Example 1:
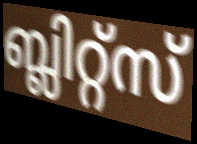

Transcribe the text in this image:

ബ്ലിറ്റ്സ്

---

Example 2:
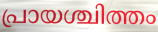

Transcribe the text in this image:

പ്രായശ്ചിത്തം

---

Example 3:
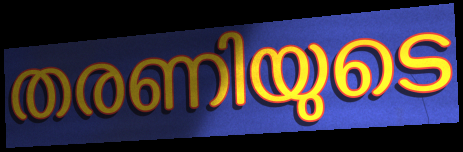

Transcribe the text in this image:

തരണിയുടെ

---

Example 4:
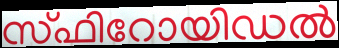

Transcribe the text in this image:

സ്ഫിറോയിഡൽ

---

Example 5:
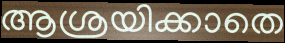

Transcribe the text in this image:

ആശ്രയിക്കാതെ